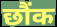
छौंक